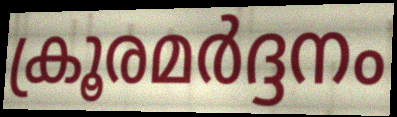
ക്രൂരമർദ്ദനം